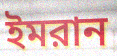
ইমরান